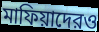
মাফিয়াদেরও